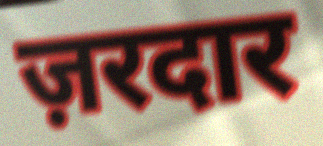
ज़रदार